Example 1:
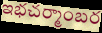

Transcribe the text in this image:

ఇభచర్మాంబర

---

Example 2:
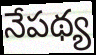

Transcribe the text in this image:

నేపథ్య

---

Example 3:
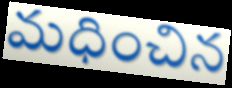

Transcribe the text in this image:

మధించిన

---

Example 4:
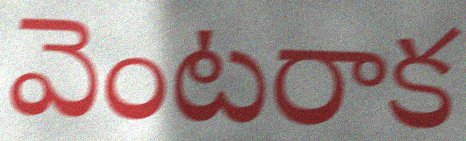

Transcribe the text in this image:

వెంటరాక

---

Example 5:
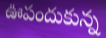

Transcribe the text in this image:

ఊపందుకున్న